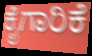
ಕೈಗಾರಿಕೆ